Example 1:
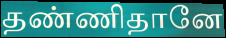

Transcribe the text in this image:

தண்ணிதானே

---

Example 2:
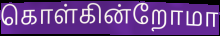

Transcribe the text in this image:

கொள்கின்றோமா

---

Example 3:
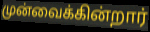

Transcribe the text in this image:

முன்வைக்கின்றார்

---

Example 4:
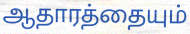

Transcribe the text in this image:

ஆதாரத்தையும்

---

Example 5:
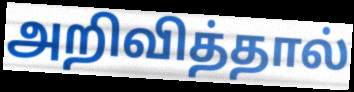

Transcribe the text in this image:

அறிவித்தால்